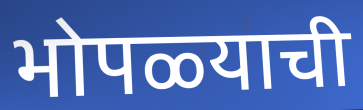
भोपळ्याची